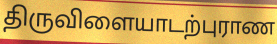
திருவிளையாடற்புராண